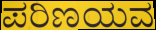
ಪರಿಣಯವ